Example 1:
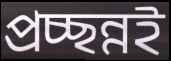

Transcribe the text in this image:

প্রচ্ছন্নই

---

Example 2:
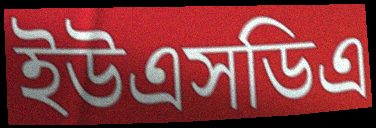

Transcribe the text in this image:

ইউএসডিএ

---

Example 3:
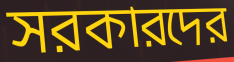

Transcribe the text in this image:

সরকারদের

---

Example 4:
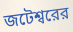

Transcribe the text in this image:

জটেশ্বরের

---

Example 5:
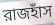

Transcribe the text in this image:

রাজহাঁস